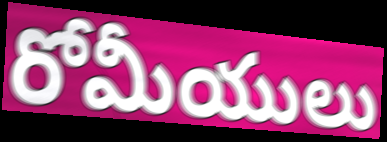
రోమీయులు